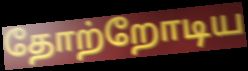
தோற்றோடிய